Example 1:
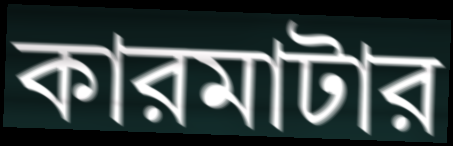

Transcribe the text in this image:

কারমাটার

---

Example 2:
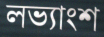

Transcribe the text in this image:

লভ্যাংশ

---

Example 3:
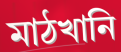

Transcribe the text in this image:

মাঠখানি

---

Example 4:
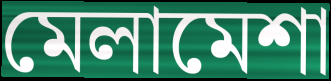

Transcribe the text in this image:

মেলামেশা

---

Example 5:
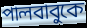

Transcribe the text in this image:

পালবাবুকে